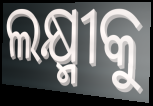
ଲକ୍ଷ୍ମୀକୁ